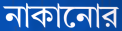
নাকানোর